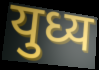
युध्य